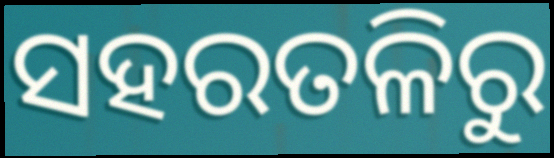
ସହରତଳିରୁ